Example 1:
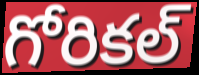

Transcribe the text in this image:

గోరికల్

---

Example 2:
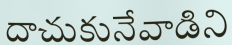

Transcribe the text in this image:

దాచుకునేవాడిని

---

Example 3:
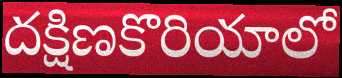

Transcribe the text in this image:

దక్షిణకొరియాలో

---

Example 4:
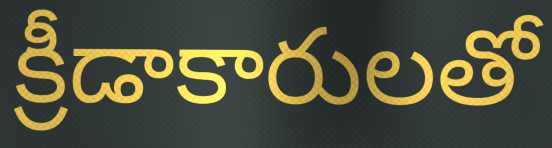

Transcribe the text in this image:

క్రీడాకారులతో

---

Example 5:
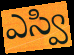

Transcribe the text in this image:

ఎస్వి